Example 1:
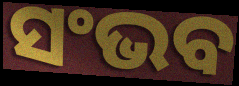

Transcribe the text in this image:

ସଂଭବ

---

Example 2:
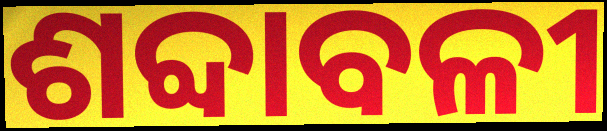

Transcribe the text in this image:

ଶବ୍ଦାବଳୀ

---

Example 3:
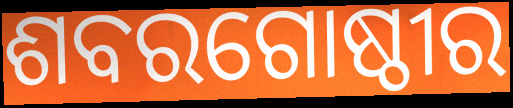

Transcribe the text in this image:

ଶବରଗୋଷ୍ଠୀର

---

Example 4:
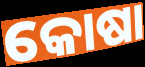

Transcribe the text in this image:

କୋଷା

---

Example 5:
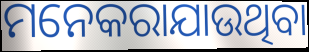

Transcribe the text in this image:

ମନେକରାଯାଉଥିବା